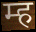
म्ह